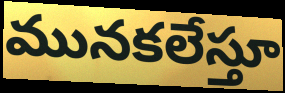
మునకలేస్తూ